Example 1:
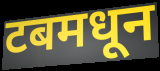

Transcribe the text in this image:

टबमधून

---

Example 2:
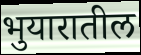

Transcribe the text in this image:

भुयारातील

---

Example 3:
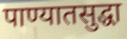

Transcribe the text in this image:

पाण्यातसुद्धा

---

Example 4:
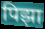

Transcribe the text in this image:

पिझा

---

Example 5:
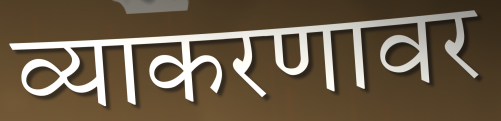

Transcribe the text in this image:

व्याकरणावर